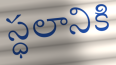
స్ధలానికి